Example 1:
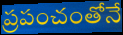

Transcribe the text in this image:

ప్రపంచంతోనే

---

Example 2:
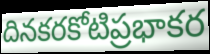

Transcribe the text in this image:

దినకరకోటిప్రభాకర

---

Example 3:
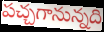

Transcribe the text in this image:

పచ్చగానున్నది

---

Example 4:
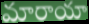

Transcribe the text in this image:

మారాయా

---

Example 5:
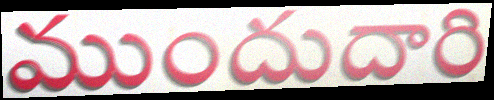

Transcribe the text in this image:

ముందుదారి